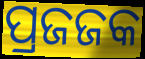
ପ୍ରଜଜକ